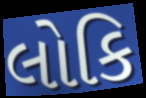
લોકિ